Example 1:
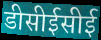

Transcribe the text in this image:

डीसीईसीई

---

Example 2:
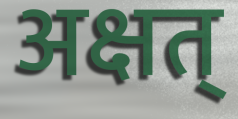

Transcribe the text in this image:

अक्षत्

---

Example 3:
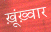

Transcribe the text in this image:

ख़ूंख़्वार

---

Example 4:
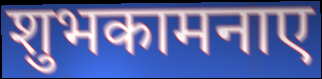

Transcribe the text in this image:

शुभकामनाए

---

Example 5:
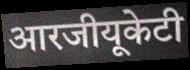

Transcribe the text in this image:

आरजीयूकेटी